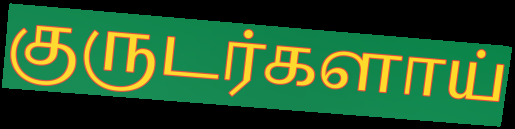
குருடர்களாய்